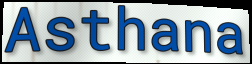
Asthana